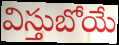
విస్తుబోయే